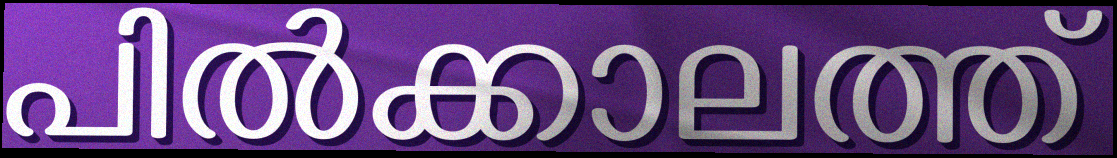
പിൽക്കാലത്ത്